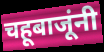
चहूबाजूंनी